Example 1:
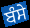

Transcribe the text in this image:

ਬੰਸੇ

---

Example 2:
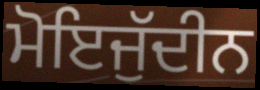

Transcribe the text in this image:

ਮੋਇਜੁੱਦੀਨ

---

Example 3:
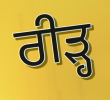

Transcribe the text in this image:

ਰੀੜ੍ਹ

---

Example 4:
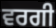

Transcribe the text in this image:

ਵਰਗੀ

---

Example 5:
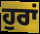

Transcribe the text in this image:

ਹੁਰਾਂ